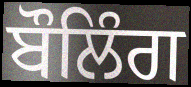
ਬੌਲਿੰਗ